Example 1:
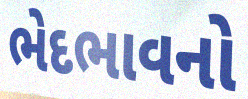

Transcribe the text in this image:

ભેદભાવનો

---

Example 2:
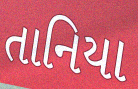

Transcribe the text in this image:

તાનિયા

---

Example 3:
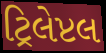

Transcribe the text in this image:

ટ્રિલેપ્ટલ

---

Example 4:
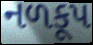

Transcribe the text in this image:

નળકૂપ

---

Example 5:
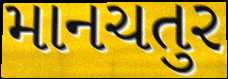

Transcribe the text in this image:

માનચતુર